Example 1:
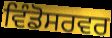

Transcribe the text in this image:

ਵਿੰਡੋਸਰਵਰ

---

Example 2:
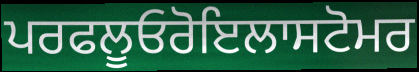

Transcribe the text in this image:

ਪਰਫਲੂਓਰੋਇਲਾਸਟੋਮਰ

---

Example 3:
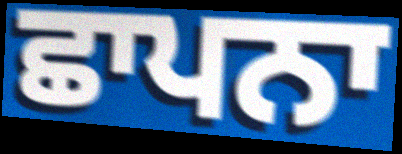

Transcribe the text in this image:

ਛਾਪਨਾ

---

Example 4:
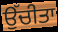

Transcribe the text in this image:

ਉੱਚੀਤਾ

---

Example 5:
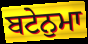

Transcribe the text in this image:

ਬਟੇਨੁਮਾ